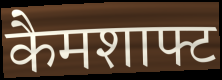
कैमशाफ्ट